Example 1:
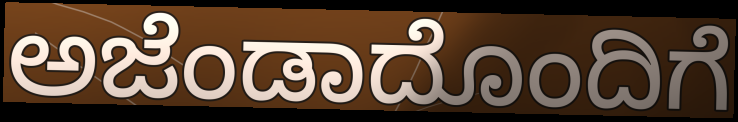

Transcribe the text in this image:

ಅಜೆಂಡಾದೊಂದಿಗೆ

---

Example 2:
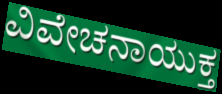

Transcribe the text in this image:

ವಿವೇಚನಾಯುಕ್ತ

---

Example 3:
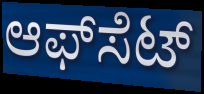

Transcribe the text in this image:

ಆಫ್‍ಸೆಟ್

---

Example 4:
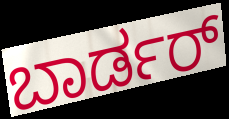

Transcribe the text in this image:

ಬಾರ್ಡರ್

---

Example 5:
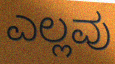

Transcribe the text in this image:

ಎಲ್ಲವು